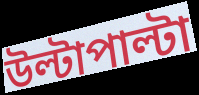
উল্টাপাল্টা